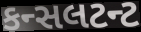
કન્સલટન્ટ